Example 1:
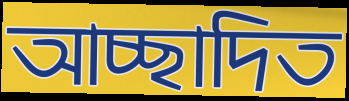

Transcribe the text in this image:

আচ্ছাদিত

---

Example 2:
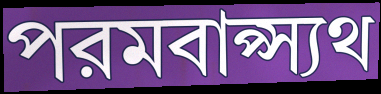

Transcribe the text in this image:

পরমবাপ্স্যথ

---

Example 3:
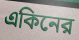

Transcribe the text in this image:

একিনের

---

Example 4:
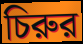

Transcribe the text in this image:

চিরুর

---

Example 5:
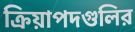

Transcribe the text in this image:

ক্রিয়াপদগুলির